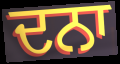
ਦਨਾ